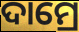
ଦାମ୍ରେ